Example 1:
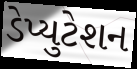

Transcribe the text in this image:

ડેપ્યુટેશન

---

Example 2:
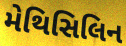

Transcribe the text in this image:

મેથિસિલિન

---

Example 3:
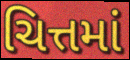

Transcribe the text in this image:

ચિત્તમાં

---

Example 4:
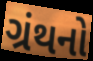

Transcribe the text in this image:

ગ્રંથનો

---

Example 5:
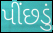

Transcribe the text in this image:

પીંછડું